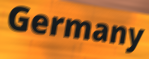
Germany